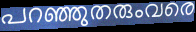
പറഞ്ഞുതരുംവരെ